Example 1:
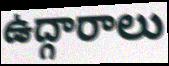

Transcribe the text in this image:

ఉద్గారాలు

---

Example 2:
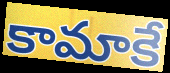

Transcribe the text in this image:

కామాకే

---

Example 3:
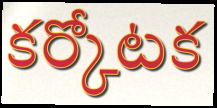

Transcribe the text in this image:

కర్కోటక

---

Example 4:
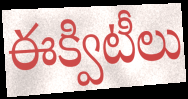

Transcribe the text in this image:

ఈక్విటీలు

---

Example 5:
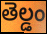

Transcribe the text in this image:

తెల్డం